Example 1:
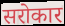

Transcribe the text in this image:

सरोकार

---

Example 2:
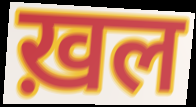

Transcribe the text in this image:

ख़ल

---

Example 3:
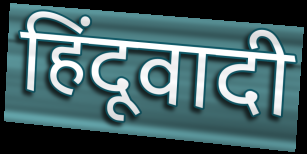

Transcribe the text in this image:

हिंदूवादी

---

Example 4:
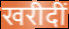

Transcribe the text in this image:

खरीदीं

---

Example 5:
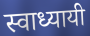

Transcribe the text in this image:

स्वाध्यायी